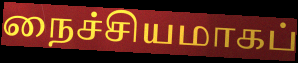
நைச்சியமாகப்